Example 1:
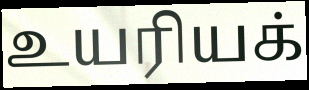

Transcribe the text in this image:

உயரியக்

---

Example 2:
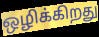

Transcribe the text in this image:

ஒழிக்கிறது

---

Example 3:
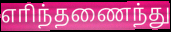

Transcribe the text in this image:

எரிந்தணைந்து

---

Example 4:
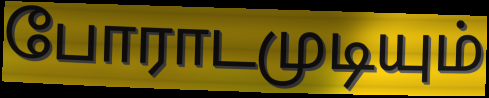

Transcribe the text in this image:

போராடமுடியும்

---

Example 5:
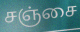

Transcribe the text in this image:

சஞ்சை